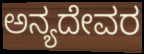
ಅನ್ಯದೇವರ